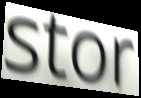
stor